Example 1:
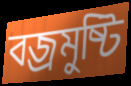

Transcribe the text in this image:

বজ্রমুষ্টি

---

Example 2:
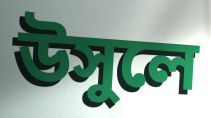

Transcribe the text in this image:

উসুলে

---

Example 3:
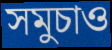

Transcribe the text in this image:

সমুচাও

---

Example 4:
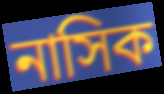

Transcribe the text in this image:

নাসিক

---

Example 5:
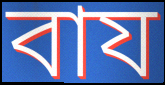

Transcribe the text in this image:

বায